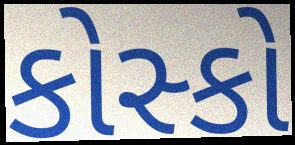
કોસ્કો